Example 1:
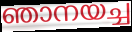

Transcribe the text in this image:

ഞാനയച്ച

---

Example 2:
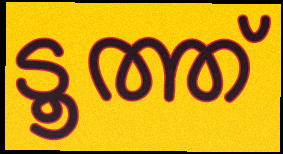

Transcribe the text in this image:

ടൂത്ത്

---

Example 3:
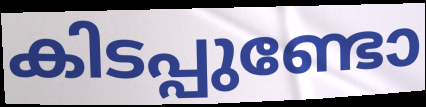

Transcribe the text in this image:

കിടപ്പുണ്ടോ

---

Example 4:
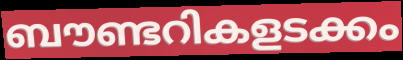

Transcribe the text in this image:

ബൗണ്ടറികളടക്കം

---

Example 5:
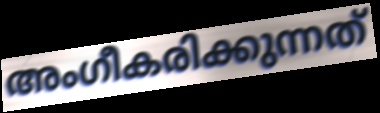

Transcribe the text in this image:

അംഗീകരിക്കുന്നത്